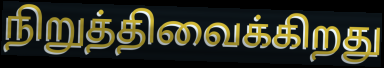
நிறுத்திவைக்கிறது